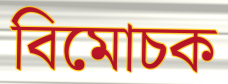
বিমোচক